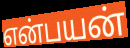
என்பயன்